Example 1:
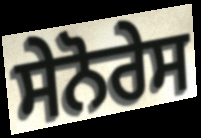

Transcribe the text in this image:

ਸੇਨੋਰੇਸ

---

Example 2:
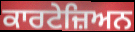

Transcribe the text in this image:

ਕਾਰਟੇਜ਼ਿਅਨ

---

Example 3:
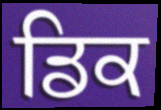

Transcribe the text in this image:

ਡਿਕ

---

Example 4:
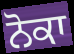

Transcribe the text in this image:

ਨੋਕਾ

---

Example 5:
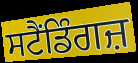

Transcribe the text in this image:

ਸਟੈਂਡਿੰਗਜ਼